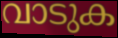
വാടുക